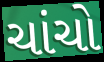
ચાંચો